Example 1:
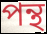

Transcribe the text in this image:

পন্থ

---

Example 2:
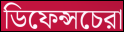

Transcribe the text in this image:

ডিফেন্সচেরা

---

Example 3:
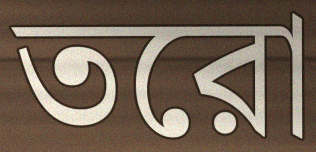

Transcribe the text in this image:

তরো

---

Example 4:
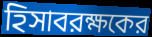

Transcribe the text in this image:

হিসাবরক্ষকের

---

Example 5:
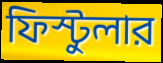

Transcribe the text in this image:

ফিস্টুলার